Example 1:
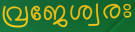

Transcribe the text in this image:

വ്രജേശ്വരഃ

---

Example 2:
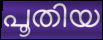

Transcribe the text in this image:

പൂതിയ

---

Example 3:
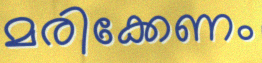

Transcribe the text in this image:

മരിക്കേണം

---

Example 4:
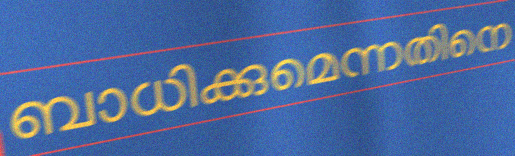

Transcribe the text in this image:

ബാധിക്കുമെന്നതിനെ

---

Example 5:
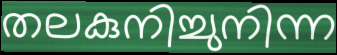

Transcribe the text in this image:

തലകുനിച്ചുനിന്ന